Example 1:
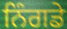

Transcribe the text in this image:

ਨਿੰਗਡੇ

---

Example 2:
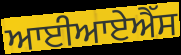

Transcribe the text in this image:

ਆਈਆਏਐੱਸ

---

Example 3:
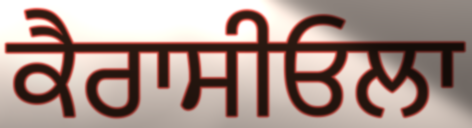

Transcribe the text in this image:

ਕੈਰਾਸੀਓਲਾ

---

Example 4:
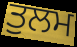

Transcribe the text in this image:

ਤੁਲਮ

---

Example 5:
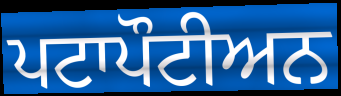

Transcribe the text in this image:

ਪਟਾਪੌਟੀਅਨ